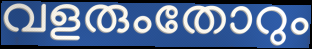
വളരുംതോറും